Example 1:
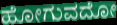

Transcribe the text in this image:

ಹೋಗುವದೋ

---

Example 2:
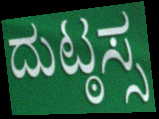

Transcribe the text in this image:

ದುಟ್ಠಸ್ಸ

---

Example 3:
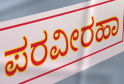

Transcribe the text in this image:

ಪರವೀರಹಾ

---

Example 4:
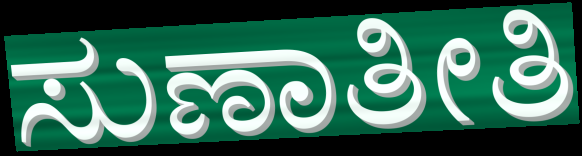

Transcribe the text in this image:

ಸುಣಾತೀತಿ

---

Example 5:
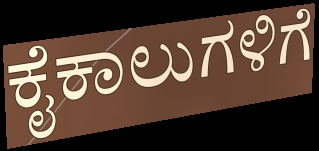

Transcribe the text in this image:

ಕೈಕಾಲುಗಳಿಗೆ